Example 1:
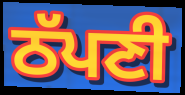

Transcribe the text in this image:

ਠੱਪਣੀ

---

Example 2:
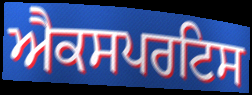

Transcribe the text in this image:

ਐਕਸਪਰਟਿਸ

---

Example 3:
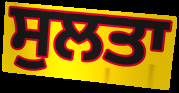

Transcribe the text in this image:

ਸੁਲਤਾ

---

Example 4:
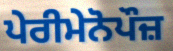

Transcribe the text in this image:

ਪੇਰੀਮੇਨੋਪੌਜ਼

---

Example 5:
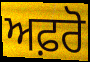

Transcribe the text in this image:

ਅਫ਼ਰੋ